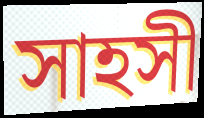
সাহসী